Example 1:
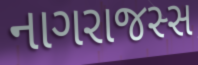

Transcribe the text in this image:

નાગરાજસ્સ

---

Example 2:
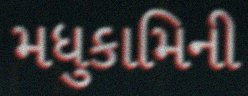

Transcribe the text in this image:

મધુકામિની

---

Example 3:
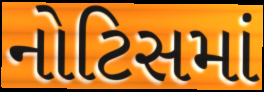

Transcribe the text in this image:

નોટિસમાં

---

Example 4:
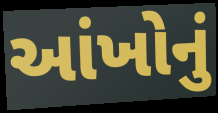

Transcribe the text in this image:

આંખોનું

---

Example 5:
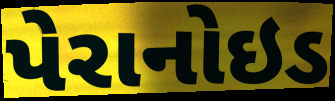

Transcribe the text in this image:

પેરાનોઇડ